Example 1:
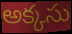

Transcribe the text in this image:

అక్కసు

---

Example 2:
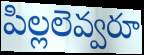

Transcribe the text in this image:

పిల్లలెవ్వరూ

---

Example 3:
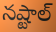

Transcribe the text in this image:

నష్టాల్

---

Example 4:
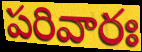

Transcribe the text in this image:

పరివారః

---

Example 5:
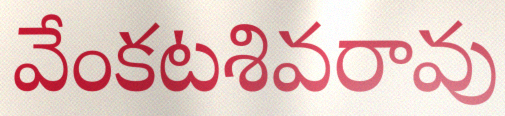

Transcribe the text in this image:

వేంకటశివరావు